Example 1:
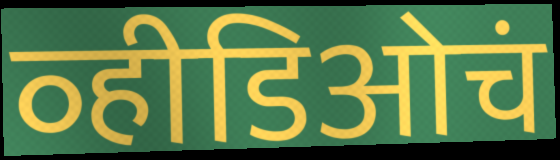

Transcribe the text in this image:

व्हीडिओचं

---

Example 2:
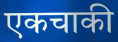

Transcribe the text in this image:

एकचाकी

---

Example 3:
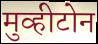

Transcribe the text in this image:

मुव्हीटोन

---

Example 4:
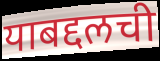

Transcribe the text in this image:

याबद्दलची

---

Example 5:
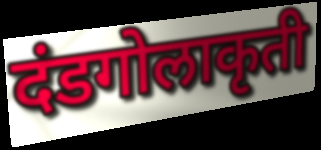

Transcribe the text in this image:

दंडगोलाकृती